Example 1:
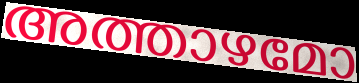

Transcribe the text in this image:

അത്താഴമോ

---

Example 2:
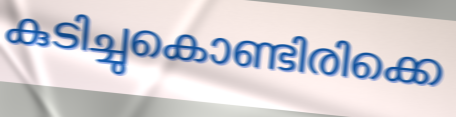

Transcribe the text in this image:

കുടിച്ചുകൊണ്ടിരിക്കെ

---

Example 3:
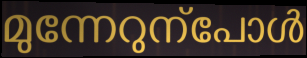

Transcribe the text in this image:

മുന്നേറുന്പോൾ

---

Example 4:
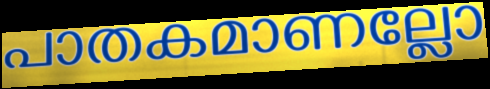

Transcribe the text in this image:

പാതകമാണല്ലോ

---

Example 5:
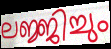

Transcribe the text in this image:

ലജ്ജിച്ചും